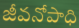
జీవనోపాధి